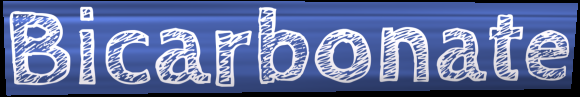
Bicarbonate